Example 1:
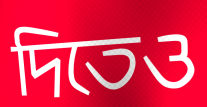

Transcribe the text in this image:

দিতেও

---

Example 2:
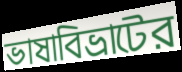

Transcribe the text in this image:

ভাষাবিভ্রাটের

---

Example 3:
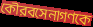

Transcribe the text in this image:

কৌরবসেনাগণকে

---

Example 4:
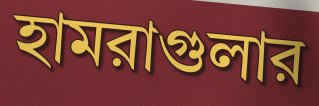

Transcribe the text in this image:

হামরাগুলার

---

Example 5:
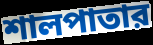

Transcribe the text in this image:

শালপাতার